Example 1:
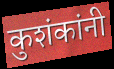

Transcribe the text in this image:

कुशंकांनी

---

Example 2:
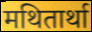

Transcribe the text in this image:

मथितार्था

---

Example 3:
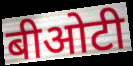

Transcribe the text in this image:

बीओटी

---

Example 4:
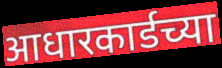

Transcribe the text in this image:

आधारकार्डच्या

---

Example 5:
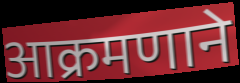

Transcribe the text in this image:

आक्रमणाने